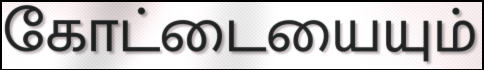
கோட்டையையும்